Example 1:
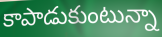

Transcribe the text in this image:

కాపాడుకుంటున్నా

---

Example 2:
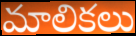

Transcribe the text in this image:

మాలికలు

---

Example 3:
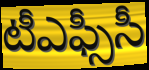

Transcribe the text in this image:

టీఎఫ్సీసీ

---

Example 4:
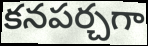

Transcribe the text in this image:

కనపర్చగా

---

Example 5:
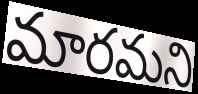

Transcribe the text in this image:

మారమని